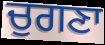
ਚੁਗਣਾ